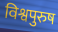
विश्वपुरुष